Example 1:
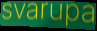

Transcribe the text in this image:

svarupa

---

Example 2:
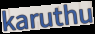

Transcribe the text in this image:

karuthu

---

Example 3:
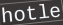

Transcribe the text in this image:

hotle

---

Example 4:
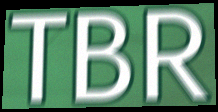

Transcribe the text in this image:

TBR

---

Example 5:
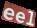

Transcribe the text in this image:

eel